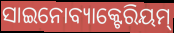
ସାଇନୋବ୍ୟାକ୍ଟେରିୟମ୍